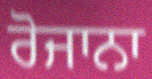
ਰੋਜਾਨਾ